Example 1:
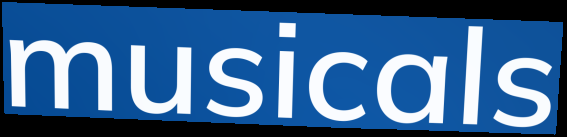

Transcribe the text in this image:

musicals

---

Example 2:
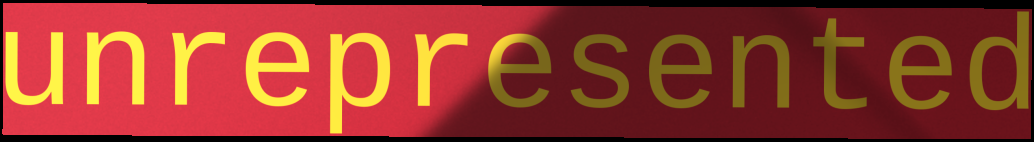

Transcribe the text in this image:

unrepresented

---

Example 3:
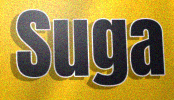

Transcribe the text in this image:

Suga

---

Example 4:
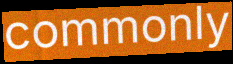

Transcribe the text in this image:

commonly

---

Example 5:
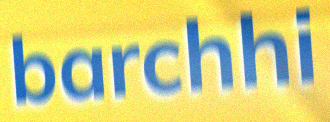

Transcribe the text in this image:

barchhi